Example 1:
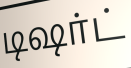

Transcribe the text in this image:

டிஷர்ட்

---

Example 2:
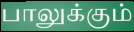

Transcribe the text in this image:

பாலுக்கும்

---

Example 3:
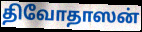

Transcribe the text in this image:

திவோதாஸன்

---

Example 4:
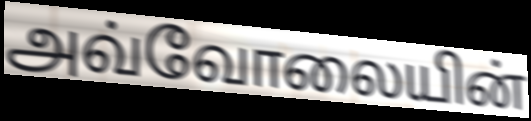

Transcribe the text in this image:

அவ்வோலையின்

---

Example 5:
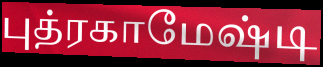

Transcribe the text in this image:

புத்ரகாமேஷ்டி